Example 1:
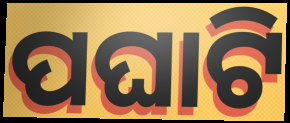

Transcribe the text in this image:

ପଘାଟି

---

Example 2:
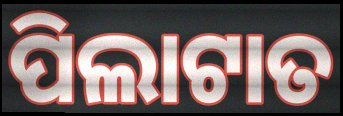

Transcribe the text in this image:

ପିଲାଟାତ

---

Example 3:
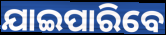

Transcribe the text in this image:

ଯାଇପାରିବେ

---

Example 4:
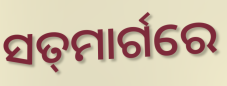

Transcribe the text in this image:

ସତ୍‌ମାର୍ଗରେ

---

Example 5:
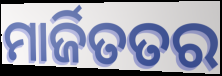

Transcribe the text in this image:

ମାର୍ଜିତତର